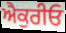
ਐਕੁਰੀਓ